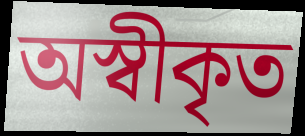
অস্বীকৃত